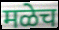
मळेच